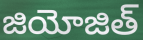
జియోజిత్